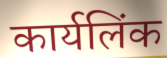
कार्यलिंक